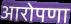
आरोपणा